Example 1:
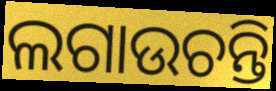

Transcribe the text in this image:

ଲଗାଉଚନ୍ତି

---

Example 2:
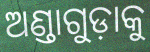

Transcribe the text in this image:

ଅଣ୍ଡାଗୁଡ଼ାକୁ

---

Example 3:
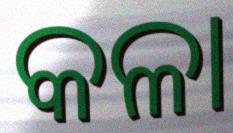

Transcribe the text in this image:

କଳା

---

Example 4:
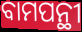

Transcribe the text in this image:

ବାମପନ୍ଥୀ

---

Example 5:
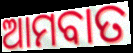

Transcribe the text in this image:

ଆମବାତ